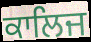
ਕਾਲਿਜ